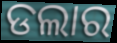
ଡଲାର